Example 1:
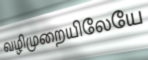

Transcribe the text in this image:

வழிமுறையிலேயே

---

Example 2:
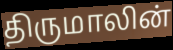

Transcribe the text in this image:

திருமாலின்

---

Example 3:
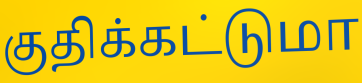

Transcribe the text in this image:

குதிக்கட்டுமா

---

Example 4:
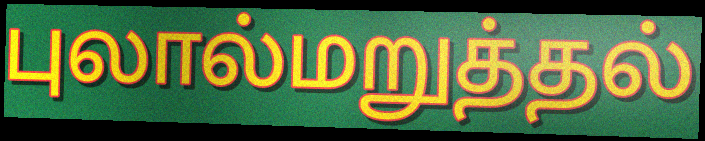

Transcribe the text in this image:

புலால்மறுத்தல்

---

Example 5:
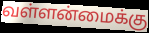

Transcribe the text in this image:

வள்ளன்மைக்கு